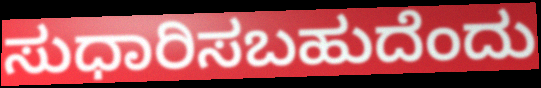
ಸುಧಾರಿಸಬಹುದೆಂದು